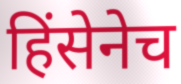
हिंसेनेच